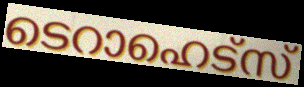
ടെറാഹെട്സ്